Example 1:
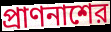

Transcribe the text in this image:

প্রাণনাশের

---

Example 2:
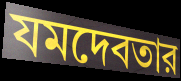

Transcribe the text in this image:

যমদেবতার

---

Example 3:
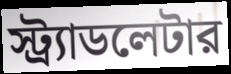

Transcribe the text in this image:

স্ট্র্যাডলেটার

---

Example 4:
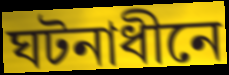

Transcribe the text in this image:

ঘটনাধীনে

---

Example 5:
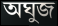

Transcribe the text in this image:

অঘুজ